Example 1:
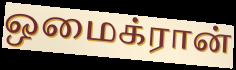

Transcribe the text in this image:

ஒமைக்ரான்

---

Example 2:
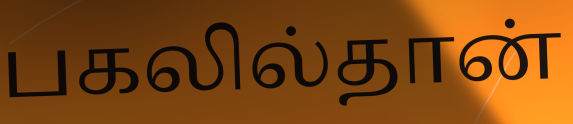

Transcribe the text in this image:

பகலில்தான்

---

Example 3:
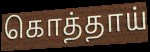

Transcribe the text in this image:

கொத்தாய்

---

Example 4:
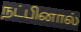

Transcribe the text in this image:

நட்பினால்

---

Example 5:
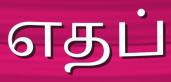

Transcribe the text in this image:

எதப்